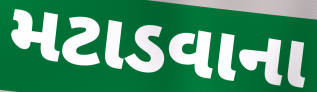
મટાડવાના